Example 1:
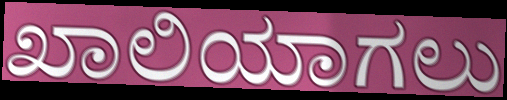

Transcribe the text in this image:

ಖಾಲಿಯಾಗಲು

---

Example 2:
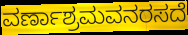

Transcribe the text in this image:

ವರ್ಣಾಶ್ರಮವನರಸದೆ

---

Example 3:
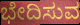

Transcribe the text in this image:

ಭೇದಿಸುವ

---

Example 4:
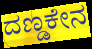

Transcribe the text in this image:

ದಣ್ಡಕೇನ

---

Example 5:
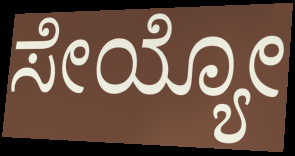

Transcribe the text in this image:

ಸೇಯ್ಯೋ